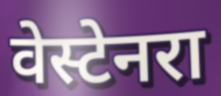
वेस्टेनरा